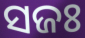
ସଜଃ